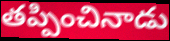
తప్పించినాడు